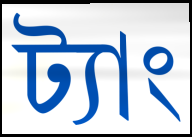
ট্যাং